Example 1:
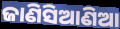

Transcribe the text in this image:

ଜାଣିସିଆଣିଆ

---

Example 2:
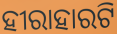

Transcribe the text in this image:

ହୀରାହାରଟି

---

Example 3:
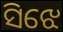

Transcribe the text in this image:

ସିଝେ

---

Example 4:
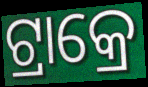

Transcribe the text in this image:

ଟ୍ରାକ୍ରେ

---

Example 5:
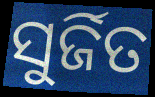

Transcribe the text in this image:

ସୁର୍ଜିତ